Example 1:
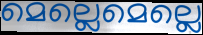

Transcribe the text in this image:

മെല്ലെമെല്ലെ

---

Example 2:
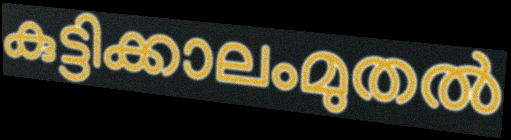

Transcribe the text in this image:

കുട്ടിക്കാലംമുതൽ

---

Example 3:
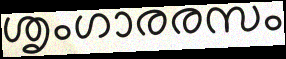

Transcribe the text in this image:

ശൃംഗാരരസം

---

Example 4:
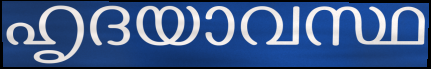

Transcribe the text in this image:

ഹൃദയാവസ്ഥ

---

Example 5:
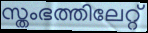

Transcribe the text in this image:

സ്തംഭത്തിലേറ്റ്